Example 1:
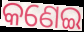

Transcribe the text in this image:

କଣେଇ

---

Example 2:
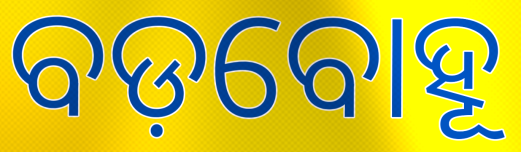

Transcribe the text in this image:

ବଡ଼ବୋହୂ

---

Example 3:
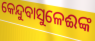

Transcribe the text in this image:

କେନ୍ଦୁବାସୁଳେଈଙ୍କ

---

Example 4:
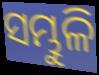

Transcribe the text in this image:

ସମ୍ଭୁଳି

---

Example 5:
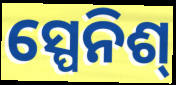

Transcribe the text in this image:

ସ୍ପେନିଶ୍